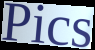
Pics